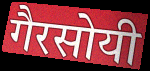
गैरसोयी